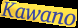
Kawano